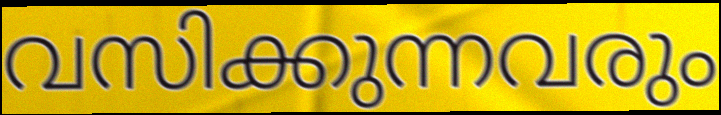
വസിക്കുന്നവരും